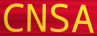
CNSA